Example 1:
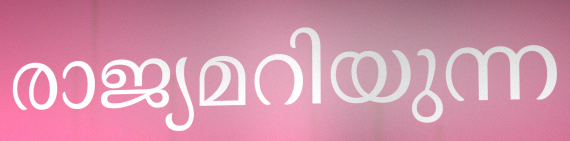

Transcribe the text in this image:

രാജ്യമറിയുന്ന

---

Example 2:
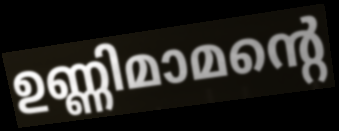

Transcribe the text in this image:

ഉണ്ണിമാമന്റെ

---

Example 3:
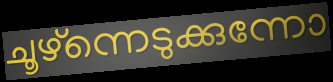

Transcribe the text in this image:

ചൂഴ്ന്നെടുക്കുന്നോ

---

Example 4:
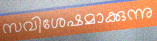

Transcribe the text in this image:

സവിശേഷമാക്കുന്നു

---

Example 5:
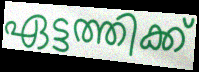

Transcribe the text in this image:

ഏട്ടത്തിക്ക്